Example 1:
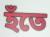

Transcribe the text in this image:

হঁতে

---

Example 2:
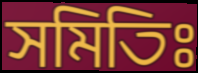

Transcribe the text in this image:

সমিতিঃ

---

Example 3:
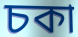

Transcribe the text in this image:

চকা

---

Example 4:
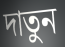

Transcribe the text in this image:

দাতুন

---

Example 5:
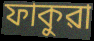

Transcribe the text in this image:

ফাকুৱা